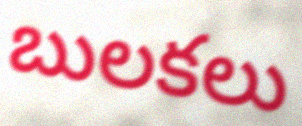
బులకలు